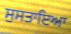
ਸੁਸਤਾਇਆ